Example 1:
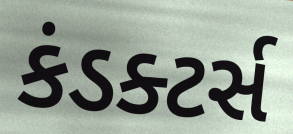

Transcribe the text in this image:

કંડક્ટર્સ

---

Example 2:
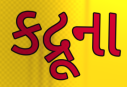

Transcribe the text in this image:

કદ્રૂના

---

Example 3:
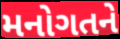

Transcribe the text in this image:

મનોગતને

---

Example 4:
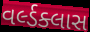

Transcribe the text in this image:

વર્લ્ડક્લાસ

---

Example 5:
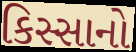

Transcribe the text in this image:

કિસ્સાનો